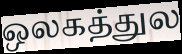
ஒலகத்துல